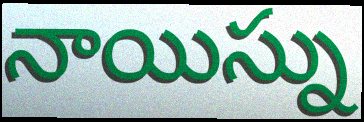
నాయిస్ను